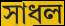
সাধল